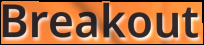
Breakout